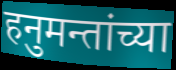
हनुमन्तांच्या